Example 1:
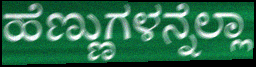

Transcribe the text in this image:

ಹೆಣ್ಣುಗಳನ್ನೆಲ್ಲಾ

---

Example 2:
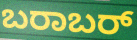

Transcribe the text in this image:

ಬರಾಬರ್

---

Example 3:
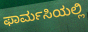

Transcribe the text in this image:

ಫಾರ್ಮಸಿಯಲ್ಲಿ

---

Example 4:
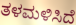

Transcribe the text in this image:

ತಳಮಳಿಸಿದೆ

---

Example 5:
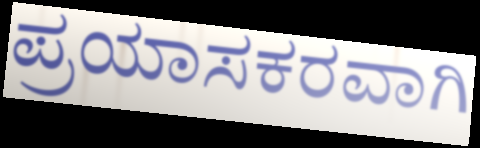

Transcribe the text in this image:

ಪ್ರಯಾಸಕರವಾಗಿ